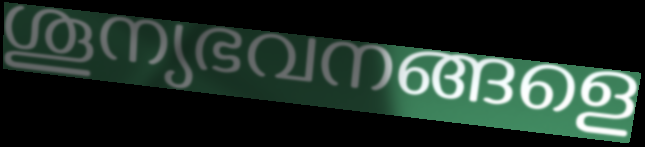
ശൂന്യഭവനങ്ങളെ